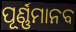
ପୂର୍ଣ୍ଣମାନବ